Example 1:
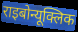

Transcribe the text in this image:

राइबोन्यूक्लिक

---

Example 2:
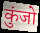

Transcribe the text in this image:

कुंजो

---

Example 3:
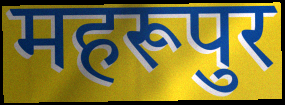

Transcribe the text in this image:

महरूपुर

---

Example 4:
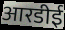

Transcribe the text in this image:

आरडीई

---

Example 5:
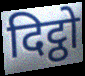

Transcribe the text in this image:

दिट्ठो